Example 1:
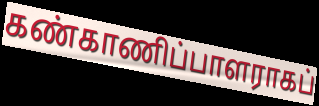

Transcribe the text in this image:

கண்காணிப்பாளராகப்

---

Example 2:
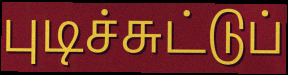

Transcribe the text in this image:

புடிச்சுட்டுப்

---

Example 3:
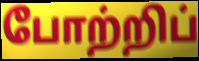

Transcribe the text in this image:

போற்றிப்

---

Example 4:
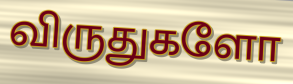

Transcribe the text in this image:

விருதுகளோ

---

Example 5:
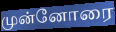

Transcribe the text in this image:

முன்னோரை